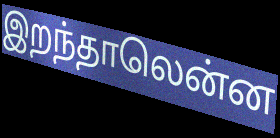
இறந்தாலென்ன